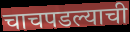
चाचपडल्याची